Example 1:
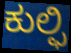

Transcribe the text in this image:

ಕುಲ್ಫಿ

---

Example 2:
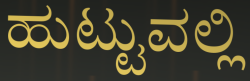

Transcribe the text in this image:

ಹುಟ್ಟುವಲ್ಲಿ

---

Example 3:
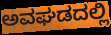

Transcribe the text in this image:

ಅವಘಡದಲ್ಲಿ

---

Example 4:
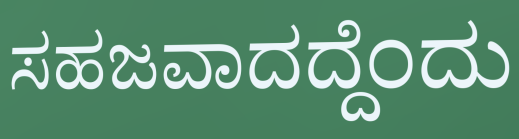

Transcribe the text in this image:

ಸಹಜವಾದದ್ದೆಂದು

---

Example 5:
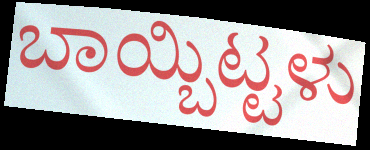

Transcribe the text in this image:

ಬಾಯ್ಬಿಟ್ಟಳು